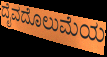
ದೈವದೊಲುಮೆಯ